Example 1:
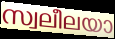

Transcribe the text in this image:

സ്വലീലയാ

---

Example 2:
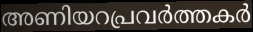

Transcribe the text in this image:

അണിയറപ്രവർത്തകർ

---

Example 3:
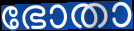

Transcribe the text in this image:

ഭോതാ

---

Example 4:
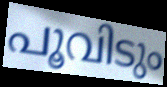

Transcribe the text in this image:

പൂവിടും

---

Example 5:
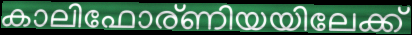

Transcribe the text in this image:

കാലിഫോര്ണിയയിലേക്ക്